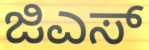
ಜಿಎಸ್